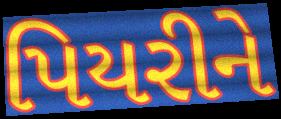
પિયરીને